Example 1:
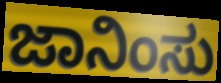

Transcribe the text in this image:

ಜಾನಿಂಸು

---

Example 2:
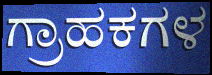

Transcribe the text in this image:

ಗ್ರಾಹಕಗಳ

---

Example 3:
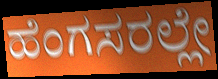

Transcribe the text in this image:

ಹೆಂಗಸರಲ್ಲೇ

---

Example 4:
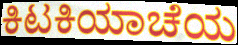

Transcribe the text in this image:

ಕಿಟಕಿಯಾಚೆಯ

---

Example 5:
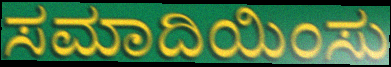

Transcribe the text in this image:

ಸಮಾದಿಯಿಂಸು